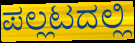
ಪಲ್ಲಟದಲ್ಲಿ